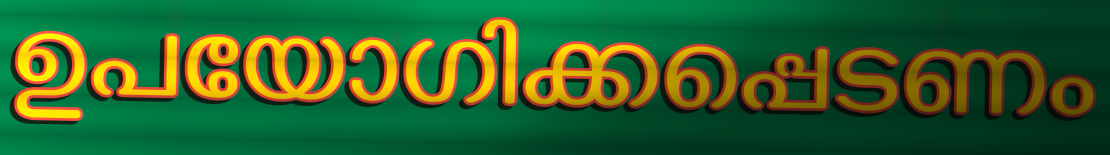
ഉപയോഗിക്കപ്പെടണം